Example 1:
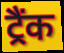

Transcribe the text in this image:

ट्रैंक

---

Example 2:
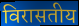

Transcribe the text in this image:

विरासतीय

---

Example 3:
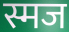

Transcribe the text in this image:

स्मज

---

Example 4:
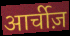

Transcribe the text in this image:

आर्चीज़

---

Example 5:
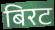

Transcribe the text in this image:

बिरट